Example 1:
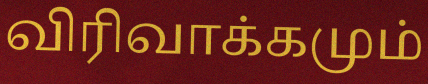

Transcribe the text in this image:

விரிவாக்கமும்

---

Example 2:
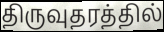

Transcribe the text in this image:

திருவுதரத்தில்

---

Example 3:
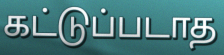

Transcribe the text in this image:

கட்டுப்படாத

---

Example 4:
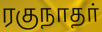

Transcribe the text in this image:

ரகுநாதர்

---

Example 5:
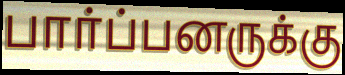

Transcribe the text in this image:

பார்ப்பனருக்கு